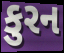
કુરન